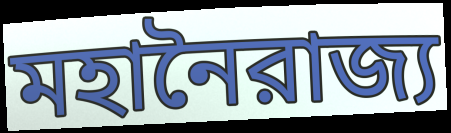
মহানৈরাজ্য